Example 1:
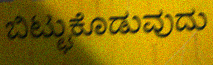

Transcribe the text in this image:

ಬಿಟ್ಟುಕೊಡುವುದು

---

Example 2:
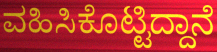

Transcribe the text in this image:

ವಹಿಸಿಕೊಟ್ಟಿದ್ದಾನೆ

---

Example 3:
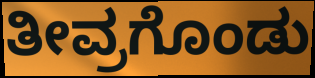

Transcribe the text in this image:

ತೀವ್ರಗೊಂಡು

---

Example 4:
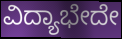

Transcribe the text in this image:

ವಿದ್ಯಾಭೇದೇ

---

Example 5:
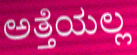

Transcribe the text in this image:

ಅತ್ತೆಯಲ್ಲ